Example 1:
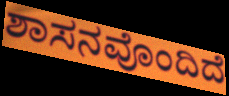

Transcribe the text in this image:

ಶಾಸನವೊಂದಿದೆ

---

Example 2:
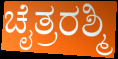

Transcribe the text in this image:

ಚೈತ್ರರಶ್ಮಿ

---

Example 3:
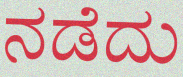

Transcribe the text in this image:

ನಡೆದು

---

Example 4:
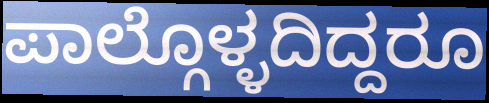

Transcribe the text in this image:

ಪಾಲ್ಗೊಳ್ಳದಿದ್ದರೂ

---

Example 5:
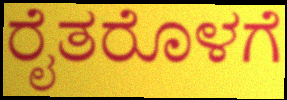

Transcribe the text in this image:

ರೈತರೊಳಗೆ